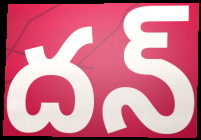
దన్